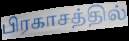
பிரகாசத்தில்